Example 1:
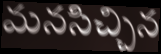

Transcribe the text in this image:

మనసిచ్చిన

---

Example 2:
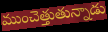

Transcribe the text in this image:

ముంచెత్తుతున్నాడు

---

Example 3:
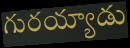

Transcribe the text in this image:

గురయ్యాడు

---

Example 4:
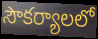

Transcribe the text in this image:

సౌకర్యాలలో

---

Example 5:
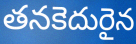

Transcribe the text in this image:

తనకెదురైన